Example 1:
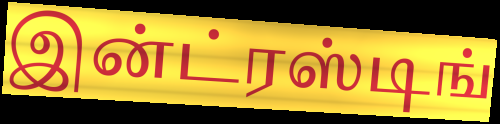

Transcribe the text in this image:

இன்ட்ரஸ்டிங்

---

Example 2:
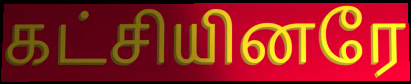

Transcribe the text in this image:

கட்சியினரே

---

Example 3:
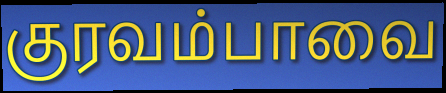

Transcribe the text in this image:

குரவம்பாவை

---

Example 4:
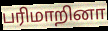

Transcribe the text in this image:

பரிமாறினா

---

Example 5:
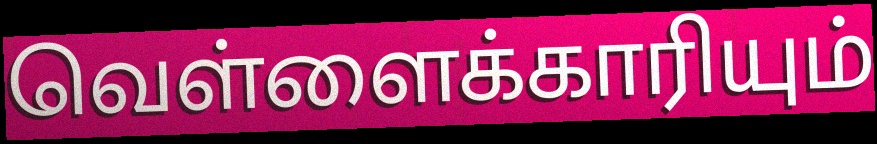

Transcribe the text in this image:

வெள்ளைக்காரியும்